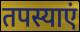
तपस्याएं